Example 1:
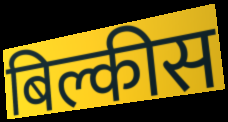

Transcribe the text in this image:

बिल्कीस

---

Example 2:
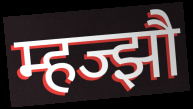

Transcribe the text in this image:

म्हज्झौ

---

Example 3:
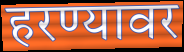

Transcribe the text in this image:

हरण्यावर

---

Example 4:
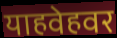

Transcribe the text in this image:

याहवेहवर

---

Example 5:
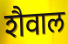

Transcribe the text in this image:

शैवाल